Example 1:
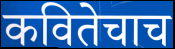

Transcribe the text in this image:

कवितेचाच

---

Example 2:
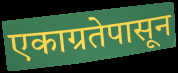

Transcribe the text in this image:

एकाग्रतेपासून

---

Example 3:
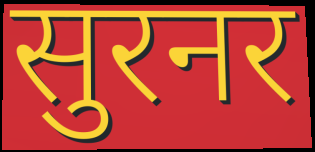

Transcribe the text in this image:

सुरनर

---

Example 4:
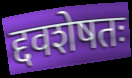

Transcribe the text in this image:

द्दवशेषतः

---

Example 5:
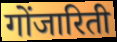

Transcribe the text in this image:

गोंजारिती